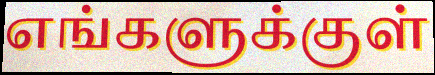
எங்களுக்குள்